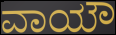
ವಾಯೌ